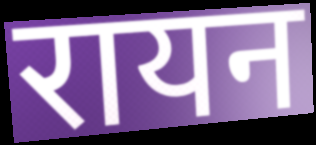
रायन